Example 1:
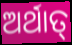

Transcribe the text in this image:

ଅର୍ଥାତ୍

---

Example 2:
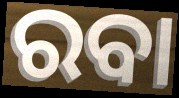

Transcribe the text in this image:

ରବା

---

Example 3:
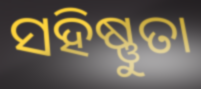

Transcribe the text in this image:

ସହିଷ୍ଣୁତା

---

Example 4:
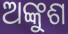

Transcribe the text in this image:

ଅଙ୍କୁଶ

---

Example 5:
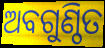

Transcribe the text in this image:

ଅବଗୁଣ୍ଠିତ